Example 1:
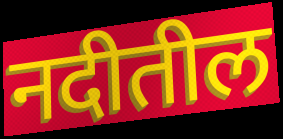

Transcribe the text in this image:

नदीतील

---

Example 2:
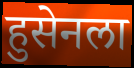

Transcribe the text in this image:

हुसेनला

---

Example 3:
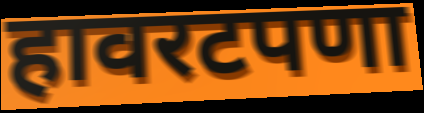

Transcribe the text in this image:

हावरटपणा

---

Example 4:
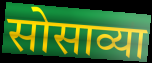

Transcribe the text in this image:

सोसाव्या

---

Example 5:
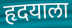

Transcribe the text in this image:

हृदयाला